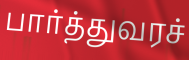
பார்த்துவரச்